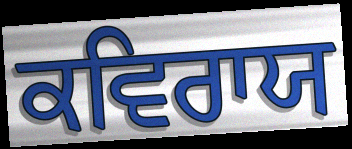
ਕਵਿਰਾਯ